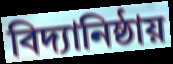
বিদ্যানিষ্ঠায়